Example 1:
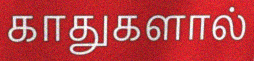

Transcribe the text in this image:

காதுகளால்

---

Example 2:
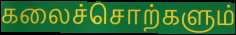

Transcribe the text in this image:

கலைச்சொற்களும்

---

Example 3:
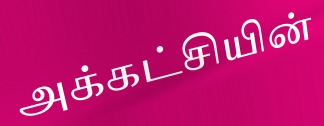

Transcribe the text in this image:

அக்கட்சியின்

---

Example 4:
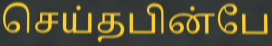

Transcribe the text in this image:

செய்தபின்பே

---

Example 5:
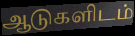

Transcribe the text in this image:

ஆடுகளிடம்